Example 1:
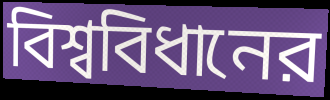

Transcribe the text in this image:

বিশ্ববিধানের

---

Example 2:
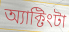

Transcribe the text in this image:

অ্যাক্টিংটা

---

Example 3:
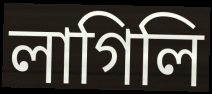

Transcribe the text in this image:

লাগিলি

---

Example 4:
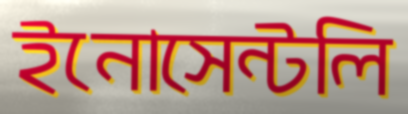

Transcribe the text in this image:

ইনোসেন্টলি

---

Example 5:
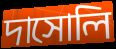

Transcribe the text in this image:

দাসোলি